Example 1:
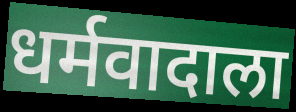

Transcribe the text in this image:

धर्मवादाला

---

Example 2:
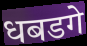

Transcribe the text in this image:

धबडगे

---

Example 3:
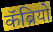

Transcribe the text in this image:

कॅब्रियो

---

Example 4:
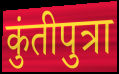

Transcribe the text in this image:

कुंतीपुत्रा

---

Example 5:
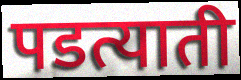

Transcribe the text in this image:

पडत्याती